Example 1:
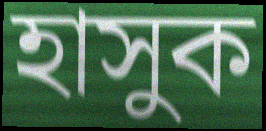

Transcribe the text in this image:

হাসুক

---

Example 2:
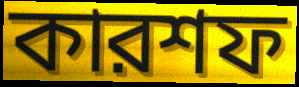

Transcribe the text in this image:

কারশফ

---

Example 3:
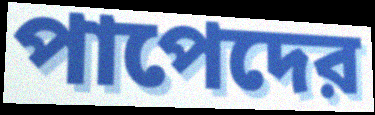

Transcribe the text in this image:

পাপেদের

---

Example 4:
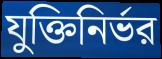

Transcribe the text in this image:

যুক্তিনির্ভর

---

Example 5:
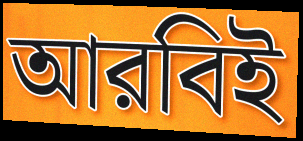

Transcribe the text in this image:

আরবিই